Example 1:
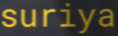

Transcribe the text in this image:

suriya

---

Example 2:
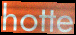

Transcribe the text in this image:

hotte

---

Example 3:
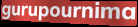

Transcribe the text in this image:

gurupournima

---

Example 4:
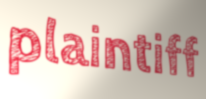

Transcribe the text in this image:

plaintiff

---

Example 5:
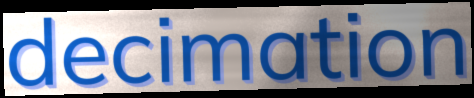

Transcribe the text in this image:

decimation